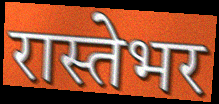
रास्तेभर